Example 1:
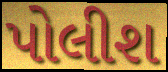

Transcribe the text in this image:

પોલીશ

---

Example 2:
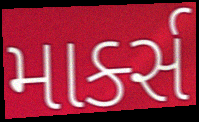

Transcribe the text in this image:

માર્ક્સ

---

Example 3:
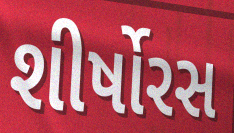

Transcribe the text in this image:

શીર્ષોરસ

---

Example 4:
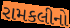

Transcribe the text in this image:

રામકલીનો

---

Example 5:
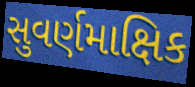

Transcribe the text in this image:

સુવર્ણમાક્ષિક